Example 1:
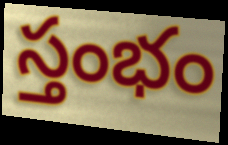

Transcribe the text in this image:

స్తంభం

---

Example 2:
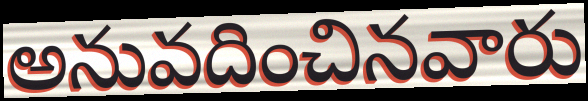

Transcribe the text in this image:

అనువదించినవారు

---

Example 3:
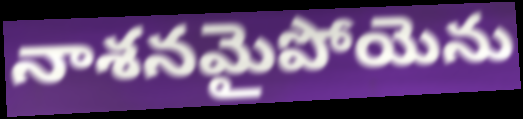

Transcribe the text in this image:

నాశనమైపోయెను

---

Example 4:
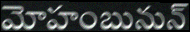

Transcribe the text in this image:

మోహంబునున్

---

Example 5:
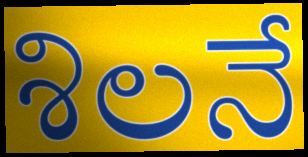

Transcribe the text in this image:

శిలనే